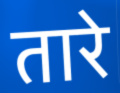
तारे